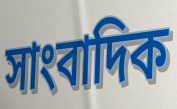
সাংবাদিক